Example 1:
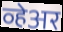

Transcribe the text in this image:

व्हेअर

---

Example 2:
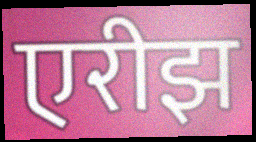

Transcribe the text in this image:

एरीझ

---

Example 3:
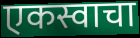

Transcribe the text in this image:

एकस्वाचा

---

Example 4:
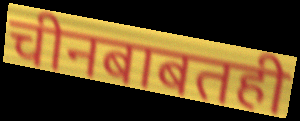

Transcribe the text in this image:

चीनबाबतही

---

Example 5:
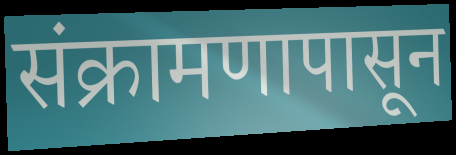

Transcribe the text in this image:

संक्रामणापासून